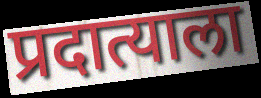
प्रदात्याला